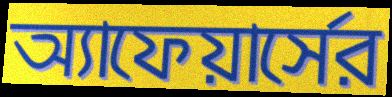
অ্যাফেয়ার্সের